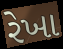
રેખા